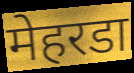
मेहरडा